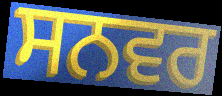
ਸਨਵਰ